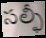
సల్ఫీ